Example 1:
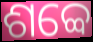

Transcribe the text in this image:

ଶବ୍ବେ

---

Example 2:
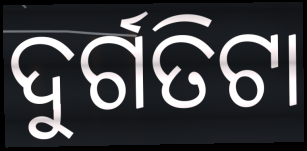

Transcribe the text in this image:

ଦୁର୍ଗତିଟା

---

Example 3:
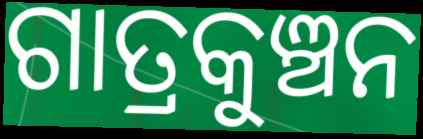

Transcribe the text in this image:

ଗାତ୍ରକୁଞ୍ଚନ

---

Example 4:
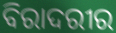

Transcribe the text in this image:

ବିରାଦରୀର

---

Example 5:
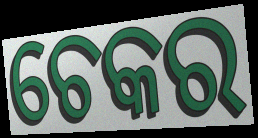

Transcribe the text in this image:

ଚେକର